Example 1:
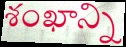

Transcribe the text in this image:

శంఖాన్ని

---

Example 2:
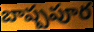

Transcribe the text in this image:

బాష్పపూర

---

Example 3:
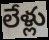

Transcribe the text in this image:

లేళ్లు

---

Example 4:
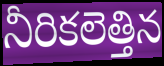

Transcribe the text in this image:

నీరికలెత్తిన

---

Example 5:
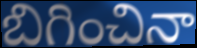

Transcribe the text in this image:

బిగించినా